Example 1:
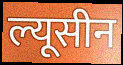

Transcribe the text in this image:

ल्यूसीन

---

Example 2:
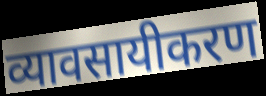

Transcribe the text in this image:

व्यावसायीकरण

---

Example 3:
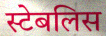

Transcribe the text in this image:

स्टेबलिस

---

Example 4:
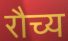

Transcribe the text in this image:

रौच्य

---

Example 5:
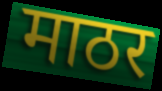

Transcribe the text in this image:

माठर